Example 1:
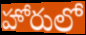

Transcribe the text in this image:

హోరులో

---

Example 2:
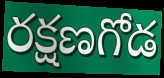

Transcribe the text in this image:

రక్షణగోడ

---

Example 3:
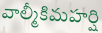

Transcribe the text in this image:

వాల్మీకిమహర్షి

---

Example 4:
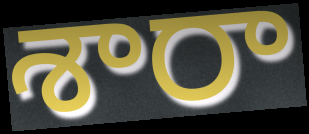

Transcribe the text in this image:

శారా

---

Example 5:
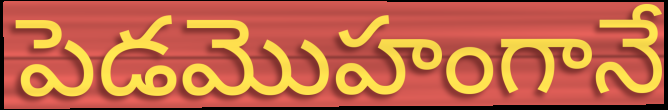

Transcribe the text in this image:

పెడమొహంగానే